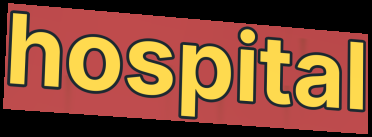
hospital